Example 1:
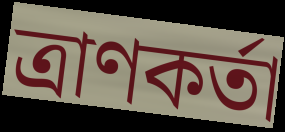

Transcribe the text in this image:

ত্ৰাণকৰ্তা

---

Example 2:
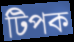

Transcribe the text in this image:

টিপক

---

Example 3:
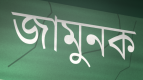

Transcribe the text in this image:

জামুনক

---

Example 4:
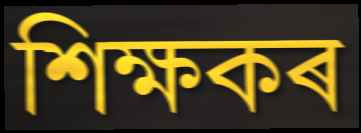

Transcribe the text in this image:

শিক্ষকৰ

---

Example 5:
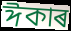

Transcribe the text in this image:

ঈকাৰ